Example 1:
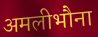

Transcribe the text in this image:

अमलीभौना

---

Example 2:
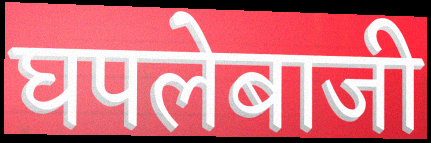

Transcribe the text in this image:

घपलेबाजी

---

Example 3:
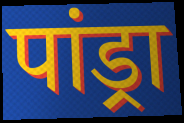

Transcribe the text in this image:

पांड्रा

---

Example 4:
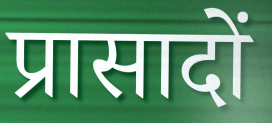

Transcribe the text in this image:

प्रासादों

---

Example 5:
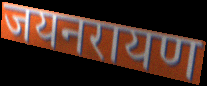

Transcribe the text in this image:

जयनरायण